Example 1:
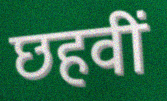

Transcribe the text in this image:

छहवीं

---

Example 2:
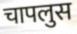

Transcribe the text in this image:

चापलुस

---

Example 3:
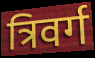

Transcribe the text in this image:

त्रिवर्ग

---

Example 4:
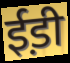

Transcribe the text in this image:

ई़डी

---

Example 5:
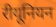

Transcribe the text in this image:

रीयूनियन